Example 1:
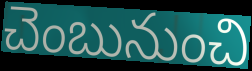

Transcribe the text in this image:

చెంబునుంచి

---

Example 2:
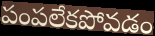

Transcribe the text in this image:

పంపలేకపోవడం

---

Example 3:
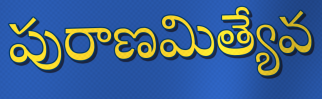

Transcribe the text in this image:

పురాణమిత్యేవ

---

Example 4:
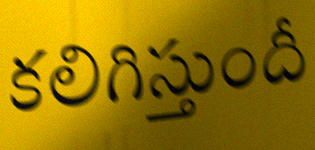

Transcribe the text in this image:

కలిగిస్తుందీ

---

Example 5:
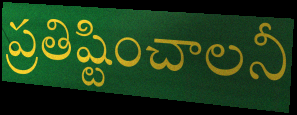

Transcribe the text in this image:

ప్రతిష్టించాలనీ